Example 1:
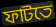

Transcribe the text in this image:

ফাটতে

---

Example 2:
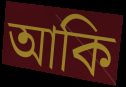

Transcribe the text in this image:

আকি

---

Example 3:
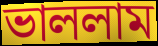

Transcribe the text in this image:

ভাললাম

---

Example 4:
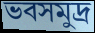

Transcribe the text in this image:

ভবসমুদ্র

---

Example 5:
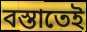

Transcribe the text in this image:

বস্তাতেই